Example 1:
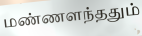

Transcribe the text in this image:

மண்ணளந்ததும்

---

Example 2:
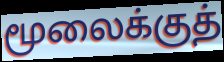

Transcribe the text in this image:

மூலைக்குத்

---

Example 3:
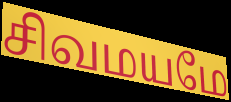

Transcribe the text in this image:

சிவமயமே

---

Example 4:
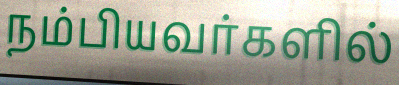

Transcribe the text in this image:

நம்பியவர்களில்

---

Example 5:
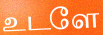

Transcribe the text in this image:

உடளே